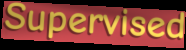
Supervised